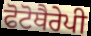
ਫੋਟੋਥੈਰੇਪੀ